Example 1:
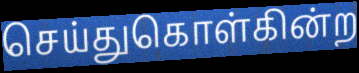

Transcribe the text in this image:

செய்துகொள்கின்ற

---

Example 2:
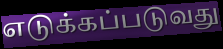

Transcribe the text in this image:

எடுக்கப்படுவது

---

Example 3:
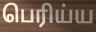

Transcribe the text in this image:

பெரிய்ய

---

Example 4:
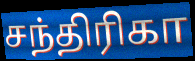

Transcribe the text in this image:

சந்திரிகா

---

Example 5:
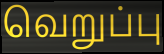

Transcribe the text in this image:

வெறுப்பு